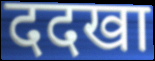
ददखा